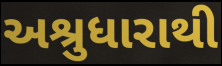
અશ્રુધારાથી